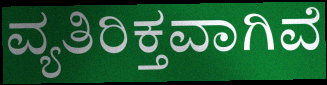
ವ್ಯತಿರಿಕ್ತವಾಗಿವೆ